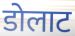
डोलाट